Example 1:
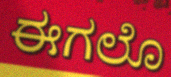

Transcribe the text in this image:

ಈಗಲೊ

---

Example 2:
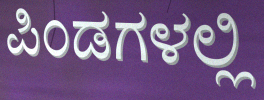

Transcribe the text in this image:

ಪಿಂಡಗಳಲ್ಲಿ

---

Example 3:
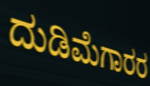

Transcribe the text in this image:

ದುಡಿಮೆಗಾರರ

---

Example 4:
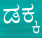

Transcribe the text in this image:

ಡಕ್ಕ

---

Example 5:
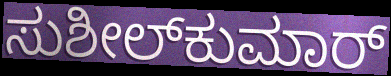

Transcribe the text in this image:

ಸುಶೀಲ್‌ಕುಮಾರ್